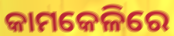
କାମକେଳିରେ